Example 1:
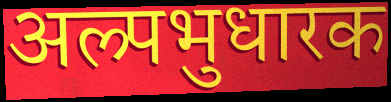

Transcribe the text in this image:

अल्पभुधारक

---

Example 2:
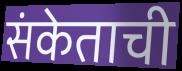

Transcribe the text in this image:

संकेताची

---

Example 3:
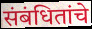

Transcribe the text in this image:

संबंधितांचे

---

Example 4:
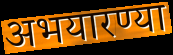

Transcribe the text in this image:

अभयारण्या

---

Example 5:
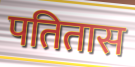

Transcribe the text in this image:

पतितास